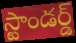
స్టాండర్డ్